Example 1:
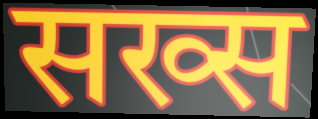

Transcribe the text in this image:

सख्स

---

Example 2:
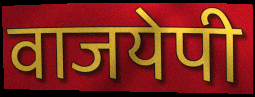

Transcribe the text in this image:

वाजयेपी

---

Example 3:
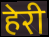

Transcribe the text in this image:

हेरी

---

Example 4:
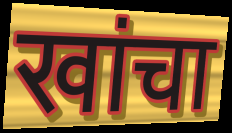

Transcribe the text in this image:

खांचा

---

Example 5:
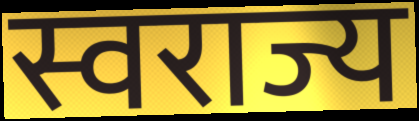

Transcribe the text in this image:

स्वराज्य